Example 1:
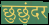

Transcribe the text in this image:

छुछुंदर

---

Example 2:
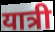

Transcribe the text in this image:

यात्री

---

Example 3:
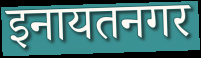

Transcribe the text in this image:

इनायतनगर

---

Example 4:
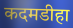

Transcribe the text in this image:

कदमडीहा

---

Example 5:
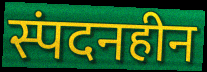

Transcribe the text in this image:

स्पंदनहीन